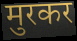
मुरकर